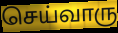
செய்வாரு